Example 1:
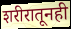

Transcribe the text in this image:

शरीरातूनही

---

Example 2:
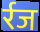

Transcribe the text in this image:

र्रज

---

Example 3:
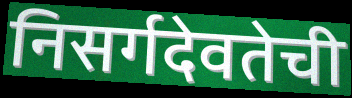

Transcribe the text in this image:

निसर्गदेवतेची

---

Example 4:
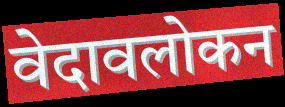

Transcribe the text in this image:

वेदावलोकन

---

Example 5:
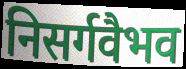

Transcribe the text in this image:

निसर्गवैभव